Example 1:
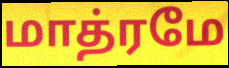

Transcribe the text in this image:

மாத்ரமே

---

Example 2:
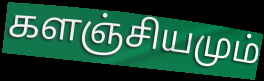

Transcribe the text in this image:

களஞ்சியமும்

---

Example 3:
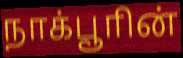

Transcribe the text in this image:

நாக்பூரின்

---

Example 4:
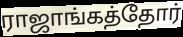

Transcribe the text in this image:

ராஜாங்கத்தோர்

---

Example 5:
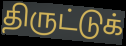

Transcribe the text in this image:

திருட்டுக்